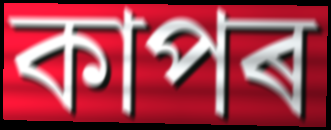
কাপৰ